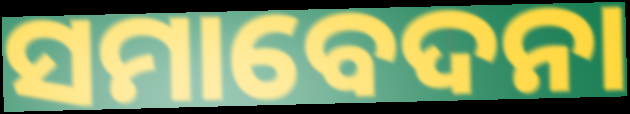
ସମାବେଦନା